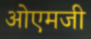
ओएमजी